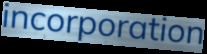
incorporation